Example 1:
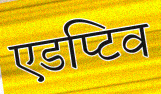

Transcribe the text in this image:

एडप्टिव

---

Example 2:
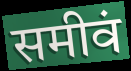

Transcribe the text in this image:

समीवं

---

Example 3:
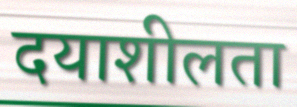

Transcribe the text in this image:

दयाशीलता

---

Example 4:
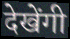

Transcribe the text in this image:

देखेंगी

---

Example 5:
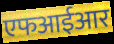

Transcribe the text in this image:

एफआईआर